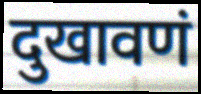
दुखावणं